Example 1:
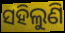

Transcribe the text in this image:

ସହିଲୁଣି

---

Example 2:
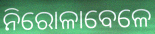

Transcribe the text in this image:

ନିରୋଳାବେଳେ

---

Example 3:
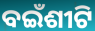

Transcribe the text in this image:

ବଇଁଶୀଟି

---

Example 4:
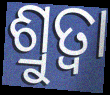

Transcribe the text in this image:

ଶ୍ରୁତ୍ଵା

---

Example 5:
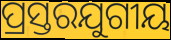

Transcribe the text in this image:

ପ୍ରସ୍ତରଯୁଗୀୟ